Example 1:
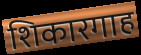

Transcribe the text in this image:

शिकारगाह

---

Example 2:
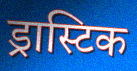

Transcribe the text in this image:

ड्रास्टिक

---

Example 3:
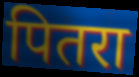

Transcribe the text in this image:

पितरा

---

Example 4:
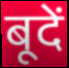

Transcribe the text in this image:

बूदें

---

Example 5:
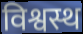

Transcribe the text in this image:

विश्वस्थ